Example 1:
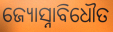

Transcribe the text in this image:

ଜ୍ୟୋସ୍ନାବିଧୌତ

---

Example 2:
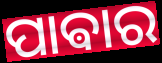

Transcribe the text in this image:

ପାଵାର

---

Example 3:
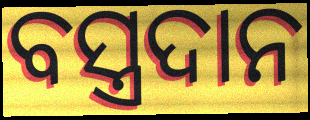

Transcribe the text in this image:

ବସ୍ତ୍ରଦାନ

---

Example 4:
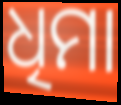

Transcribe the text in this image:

ଧିମା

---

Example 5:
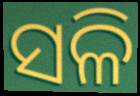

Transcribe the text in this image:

ସଳି